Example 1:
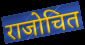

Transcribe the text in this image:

राजोचित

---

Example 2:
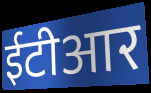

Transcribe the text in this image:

ईटीआर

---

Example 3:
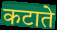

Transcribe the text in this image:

कटाते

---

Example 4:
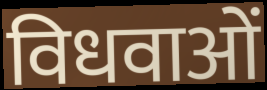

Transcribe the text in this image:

विधवाओं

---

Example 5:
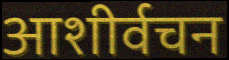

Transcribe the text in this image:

आशीर्वचन